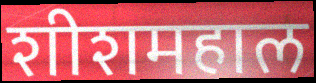
शीशमहाल